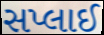
સપ્લાઈ